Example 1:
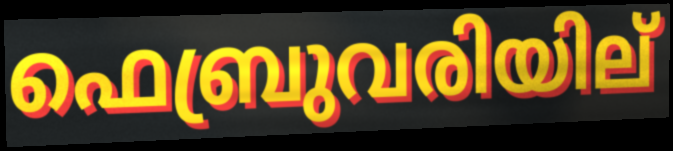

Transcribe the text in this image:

ഫെബ്രുവരിയില്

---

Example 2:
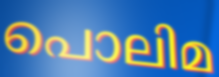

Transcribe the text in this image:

പൊലിമ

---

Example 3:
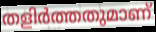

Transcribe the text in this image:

തളിർത്തതുമാണ്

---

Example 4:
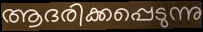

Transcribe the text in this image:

ആദരിക്കപ്പെടുന്നു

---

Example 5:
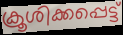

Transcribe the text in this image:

ക്രൂശിക്കപ്പെട്ട്